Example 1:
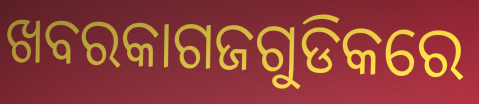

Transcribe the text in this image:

ଖବରକାଗଜଗୁଡିକରେ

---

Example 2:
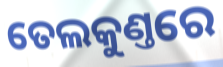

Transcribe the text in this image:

ତେଲକୁଣ୍ତରେ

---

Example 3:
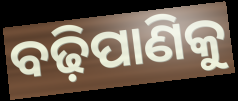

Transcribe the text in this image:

ବଢ଼ିପାଣିକୁ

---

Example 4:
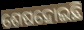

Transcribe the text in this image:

ଶେଷହୋଇଛି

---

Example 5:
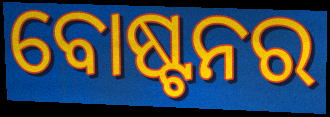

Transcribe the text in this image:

ବୋଷ୍ଟନର